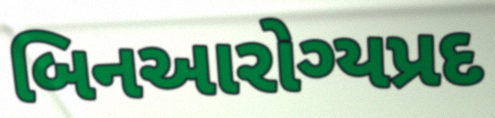
બિનઆરોગ્યપ્રદ